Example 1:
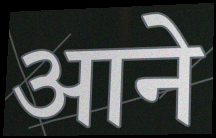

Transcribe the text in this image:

आने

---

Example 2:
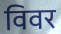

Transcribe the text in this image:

विवर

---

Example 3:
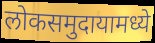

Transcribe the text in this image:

लोकसमुदायामध्ये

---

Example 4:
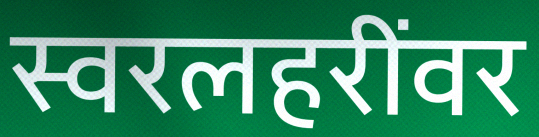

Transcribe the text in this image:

स्वरलहरींवर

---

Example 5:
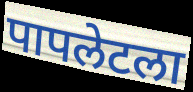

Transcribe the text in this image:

पापलेटला